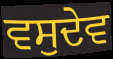
ਵਸੁਦੇਵ